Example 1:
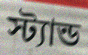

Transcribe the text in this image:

স্ট্যান্ড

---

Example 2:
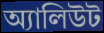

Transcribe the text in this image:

অ্যালিউট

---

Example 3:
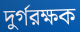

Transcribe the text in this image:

দুর্গরক্ষক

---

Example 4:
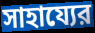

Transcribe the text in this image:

সাহায্যের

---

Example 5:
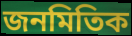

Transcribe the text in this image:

জনমিতিক